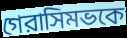
গেরাসিমভকে